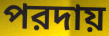
পরদায়